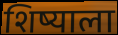
शिष्याला